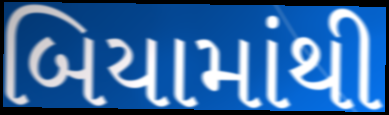
બિયામાંથી